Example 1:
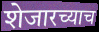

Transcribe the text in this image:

शेजारच्याच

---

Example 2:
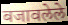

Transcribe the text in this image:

बजावलेले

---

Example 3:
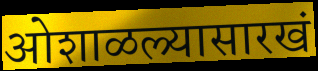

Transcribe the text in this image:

ओशाळल्यासारखं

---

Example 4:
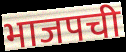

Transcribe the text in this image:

भाजपची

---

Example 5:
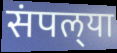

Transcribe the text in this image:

संपल्या